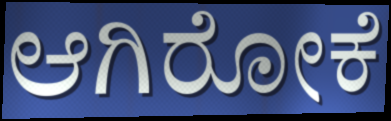
ಆಗಿರೋಕೆ